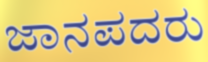
ಜಾನಪದರು